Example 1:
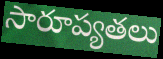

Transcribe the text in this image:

సారూప్యతలు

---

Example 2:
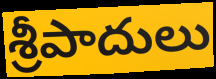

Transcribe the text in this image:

శ్రీపాదులు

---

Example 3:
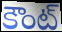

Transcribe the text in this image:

కౌంట్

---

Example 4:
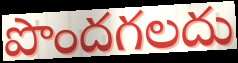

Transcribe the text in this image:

పొందగలదు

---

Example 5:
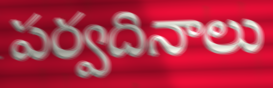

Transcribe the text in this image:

పర్వదినాలు